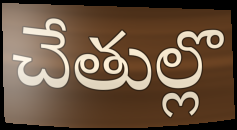
చేతుల్లొ